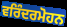
ਵਰਿੰਦਰਮੋਹਨ